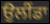
ਉਲੀਂਡਾ